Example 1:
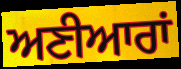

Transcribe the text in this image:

ਅਣੀਆਰਾਂ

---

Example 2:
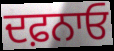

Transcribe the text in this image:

ਦਫ਼ਨਾਓ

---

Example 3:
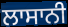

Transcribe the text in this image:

ਲਾਸਾਨੀ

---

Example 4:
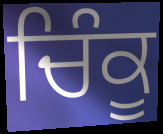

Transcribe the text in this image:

ਚਿੰਕੂ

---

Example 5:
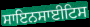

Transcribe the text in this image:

ਸਾਇਨਸਾਈਟਿਸ